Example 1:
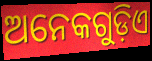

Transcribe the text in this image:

ଅନେକଗୁଡ଼ିଏ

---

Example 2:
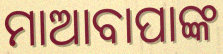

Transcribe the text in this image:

ମାଆବାପାଙ୍କ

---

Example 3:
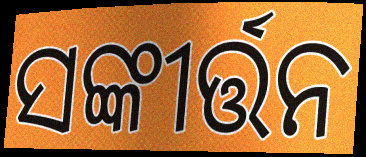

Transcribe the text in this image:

ସଙ୍କୀର୍ତ୍ତନ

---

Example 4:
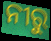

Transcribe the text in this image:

ନୀରୁ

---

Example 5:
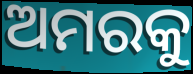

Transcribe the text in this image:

ଅମରକୁ